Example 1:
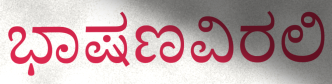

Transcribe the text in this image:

ಭಾಷಣವಿರಲಿ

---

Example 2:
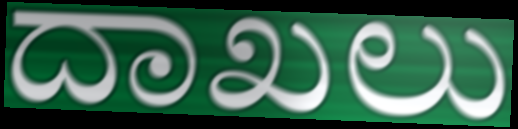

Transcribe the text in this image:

ದಾಖಲು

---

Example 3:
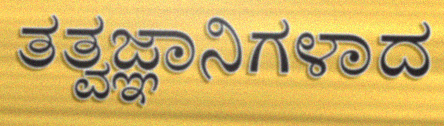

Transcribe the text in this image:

ತತ್ವಜ್ಞಾನಿಗಳಾದ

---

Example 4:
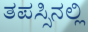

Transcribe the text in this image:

ತಪಸ್ಸಿನಲ್ಲಿ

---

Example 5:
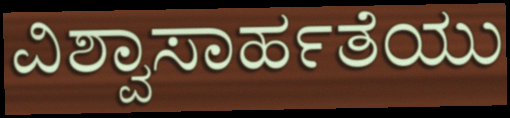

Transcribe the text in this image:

ವಿಶ್ವಾಸಾರ್ಹತೆಯು